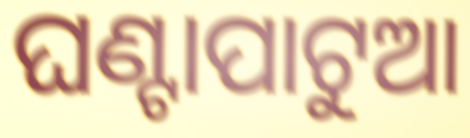
ଘଣ୍ଟାପାଟୁଆ